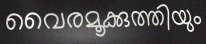
വൈരമൂക്കുത്തിയും